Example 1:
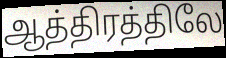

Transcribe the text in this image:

ஆத்திரத்திலே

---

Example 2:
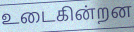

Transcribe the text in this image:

உடைகின்றன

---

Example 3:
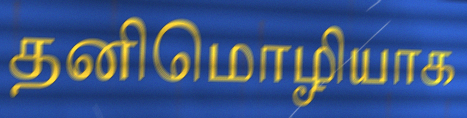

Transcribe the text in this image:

தனிமொழியாக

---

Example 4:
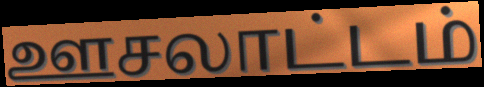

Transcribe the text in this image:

ஊசலாட்டம்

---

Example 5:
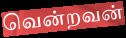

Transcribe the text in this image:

வென்றவன்